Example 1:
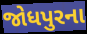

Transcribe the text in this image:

જોધપુરના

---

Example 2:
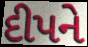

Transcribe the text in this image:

દીપને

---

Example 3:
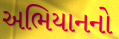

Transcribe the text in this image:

અભિયાનનો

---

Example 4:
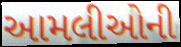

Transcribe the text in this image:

આમલીઓની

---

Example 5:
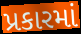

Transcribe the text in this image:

પ્રકારમાં